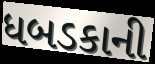
ધબડકાની